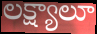
లక్ష్యాలూ